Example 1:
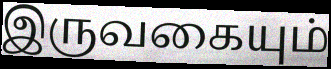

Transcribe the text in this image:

இருவகையும்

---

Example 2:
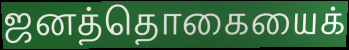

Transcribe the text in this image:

ஜனத்தொகையைக்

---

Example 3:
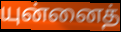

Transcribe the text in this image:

யுன்னைத்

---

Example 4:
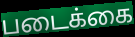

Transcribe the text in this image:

படைக்கை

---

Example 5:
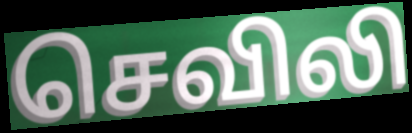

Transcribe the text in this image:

செவிலி